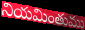
నియమింతుము